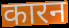
कारन